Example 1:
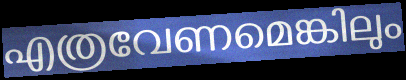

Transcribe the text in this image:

എത്രവേണമെങ്കിലും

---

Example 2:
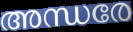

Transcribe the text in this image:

അന്ധരേ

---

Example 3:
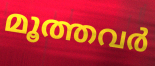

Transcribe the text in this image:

മൂത്തവർ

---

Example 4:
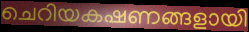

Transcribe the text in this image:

ചെറിയകഷണങ്ങളായി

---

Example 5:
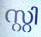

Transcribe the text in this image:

സ്റ്റി